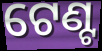
ଟେଣ୍ଟ